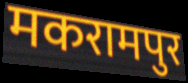
मकरामपुर